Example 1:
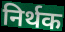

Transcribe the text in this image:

निर्थक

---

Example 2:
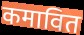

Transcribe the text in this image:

कमावित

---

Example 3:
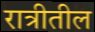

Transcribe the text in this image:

रात्रीतील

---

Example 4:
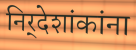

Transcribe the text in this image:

निर्देशांकांना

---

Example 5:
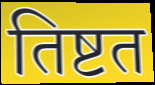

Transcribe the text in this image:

तिष्टत